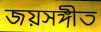
জয়সঙ্গীত